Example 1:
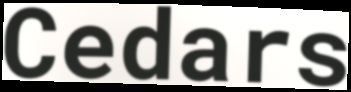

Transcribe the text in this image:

Cedars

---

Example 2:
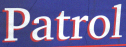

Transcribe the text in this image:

Patrol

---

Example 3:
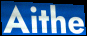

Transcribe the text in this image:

Aithe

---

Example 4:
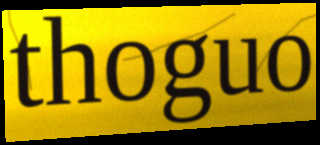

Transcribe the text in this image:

thoguo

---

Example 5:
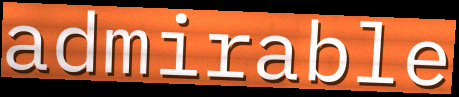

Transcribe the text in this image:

admirable